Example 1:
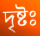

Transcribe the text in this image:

দৃষ্টঃ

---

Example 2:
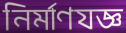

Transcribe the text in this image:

নির্মাণযজ্ঞ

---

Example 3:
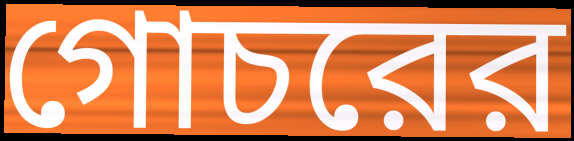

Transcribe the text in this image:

গোচরের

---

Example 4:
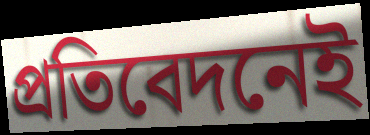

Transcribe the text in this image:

প্রতিবেদনেই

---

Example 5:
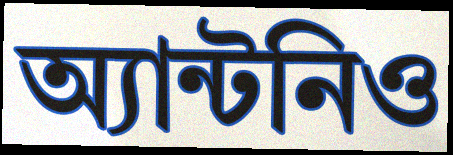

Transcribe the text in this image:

অ্যান্টনিও